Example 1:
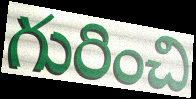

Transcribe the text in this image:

గురించి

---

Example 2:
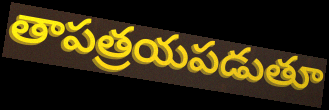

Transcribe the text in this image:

తాపత్రయపడుతూ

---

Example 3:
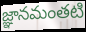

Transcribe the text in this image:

జ్ఞానమంతటి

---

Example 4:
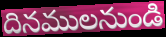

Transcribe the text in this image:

దినములనుండి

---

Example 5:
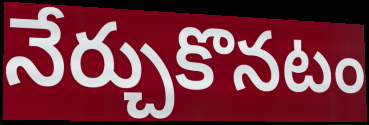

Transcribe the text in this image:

నేర్చుకొనటం